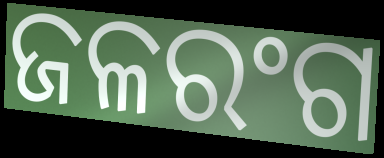
ଜଳରଂଗ